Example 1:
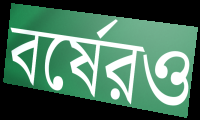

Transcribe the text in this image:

বর্ষেরও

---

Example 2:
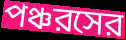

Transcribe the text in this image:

পঞ্চরসের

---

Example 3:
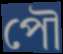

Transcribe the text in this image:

পৌ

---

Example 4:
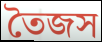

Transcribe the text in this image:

তৈজস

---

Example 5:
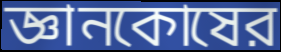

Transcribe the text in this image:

জ্ঞানকোষের